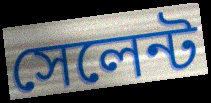
সেলেন্ট